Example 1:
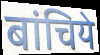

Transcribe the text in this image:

बांचिये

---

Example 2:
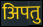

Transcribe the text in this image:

अिपतु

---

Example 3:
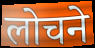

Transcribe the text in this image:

लोचने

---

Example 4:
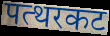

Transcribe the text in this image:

पत्थरकट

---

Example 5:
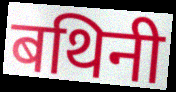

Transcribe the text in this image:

बथिनी